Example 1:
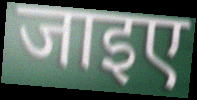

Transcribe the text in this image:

जाइए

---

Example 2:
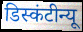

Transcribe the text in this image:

डिस्कंटीन्यू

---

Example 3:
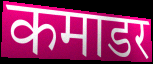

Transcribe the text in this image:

कमाडर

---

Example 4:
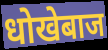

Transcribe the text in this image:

धोखेबाज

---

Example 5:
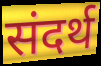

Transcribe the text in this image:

संदर्थ